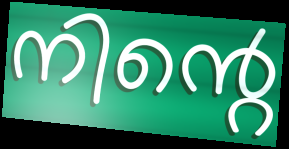
നിന്റെ